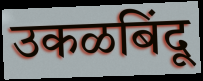
उकळबिंदू